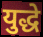
युद्धे